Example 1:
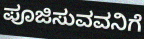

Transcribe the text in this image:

ಪೂಜಿಸುವವನಿಗೆ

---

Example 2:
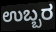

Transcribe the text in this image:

ಉಬ್ಬರ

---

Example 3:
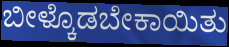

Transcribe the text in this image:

ಬೀಳ್ಕೊಡಬೇಕಾಯಿತು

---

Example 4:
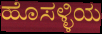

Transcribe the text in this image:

ಹೊಸಳ್ಳಿಯ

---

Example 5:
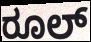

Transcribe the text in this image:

ರೂಲ್